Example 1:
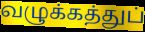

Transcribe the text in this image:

வழுக்கத்துப்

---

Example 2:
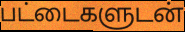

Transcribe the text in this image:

பட்டைகளுடன்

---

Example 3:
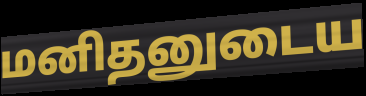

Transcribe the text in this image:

மனிதனுடைய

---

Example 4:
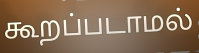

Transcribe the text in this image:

கூறப்படாமல்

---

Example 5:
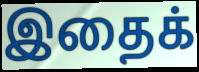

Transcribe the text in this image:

இதைக்